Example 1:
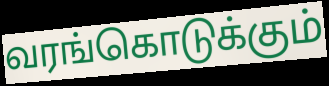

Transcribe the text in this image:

வரங்கொடுக்கும்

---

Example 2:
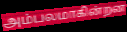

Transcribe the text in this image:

அம்பலமாகின்றன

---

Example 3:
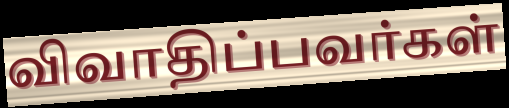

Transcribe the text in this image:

விவாதிப்பவர்கள்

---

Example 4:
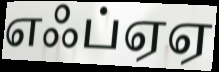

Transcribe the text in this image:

எஃப்ஏஏ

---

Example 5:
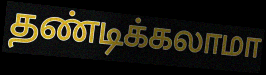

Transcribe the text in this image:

தண்டிக்கலாமா